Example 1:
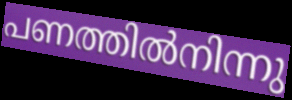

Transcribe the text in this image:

പണത്തിൽനിന്നു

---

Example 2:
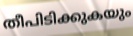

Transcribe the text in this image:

തീപിടിക്കുകയും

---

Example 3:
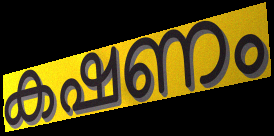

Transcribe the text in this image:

കഷണം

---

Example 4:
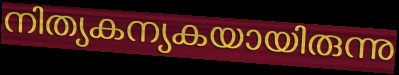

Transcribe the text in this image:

നിത്യകന്യകയായിരുന്നു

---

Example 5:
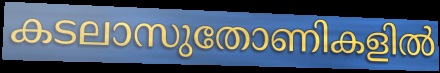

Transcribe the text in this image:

കടലാസുതോണികളിൽ